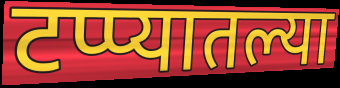
टप्प्यातल्या